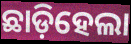
ଛାଡ଼ିହେଲା